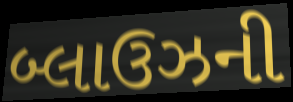
બ્લાઉઝની